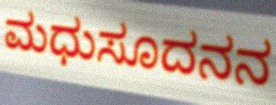
ಮಧುಸೂದನನ